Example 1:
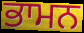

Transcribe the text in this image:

ਭਾਮਨ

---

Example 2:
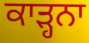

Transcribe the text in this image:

ਕਾੜ੍ਹਨਾ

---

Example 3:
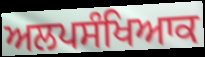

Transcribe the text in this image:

ਅਲਪਸੰਖਿਆਕ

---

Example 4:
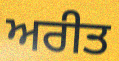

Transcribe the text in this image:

ਅਰੀਤ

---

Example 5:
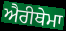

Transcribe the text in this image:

ਐਰੀਥੇਮਾ